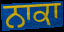
ਨਾਕਾ